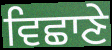
ਵਿਛਾਣੇ